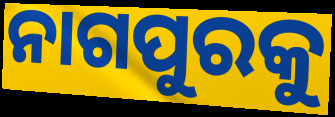
ନାଗପୁରକୁ